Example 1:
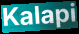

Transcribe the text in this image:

Kalapi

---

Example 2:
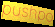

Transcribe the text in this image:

pushpo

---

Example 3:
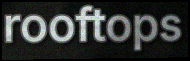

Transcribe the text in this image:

rooftops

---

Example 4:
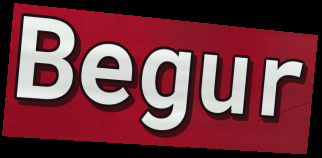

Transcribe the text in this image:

Begur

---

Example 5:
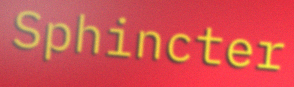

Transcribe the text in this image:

Sphincter